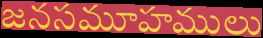
జనసమూహములు